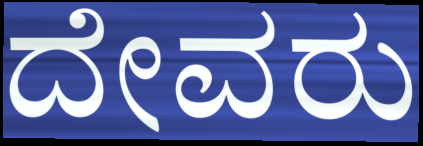
ದೇವರು